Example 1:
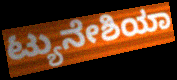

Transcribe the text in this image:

ಟ್ಯುನೇಶಿಯಾ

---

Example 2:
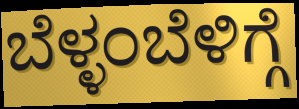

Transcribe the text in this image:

ಬೆಳ್ಳಂಬೆಳಿಗ್ಗೆ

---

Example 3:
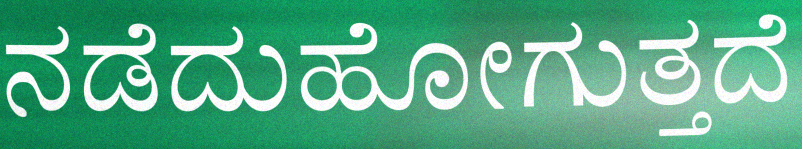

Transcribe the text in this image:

ನಡೆದುಹೋಗುತ್ತದೆ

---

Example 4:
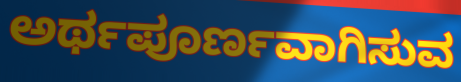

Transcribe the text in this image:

ಅರ್ಥಪೂರ್ಣವಾಗಿಸುವ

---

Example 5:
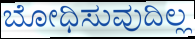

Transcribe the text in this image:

ಬೋಧಿಸುವುದಿಲ್ಲ